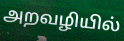
அறவழியில்